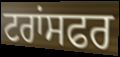
ਟਰਾਂਸਫਰ